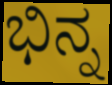
ಭಿನ್ನ